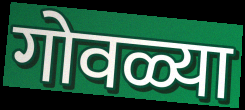
गोवळ्या